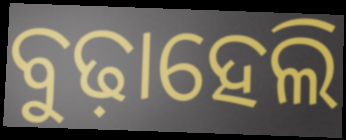
ବୁଢ଼ାହେଲି